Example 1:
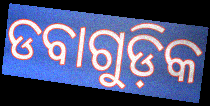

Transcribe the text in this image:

ଡବାଗୁଡ଼ିକ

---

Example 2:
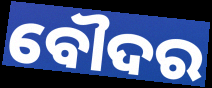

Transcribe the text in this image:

ବୌଦର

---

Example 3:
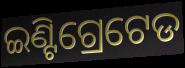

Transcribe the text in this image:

ଇଣ୍ଟିଗ୍ରେଟେଡ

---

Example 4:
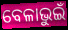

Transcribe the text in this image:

ବେଳାଭୁଇଁ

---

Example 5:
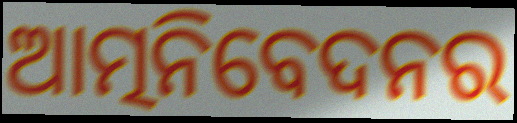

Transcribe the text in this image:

ଆତ୍ମନିବେଦନର